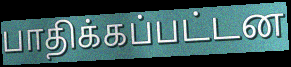
பாதிக்கப்பட்டன